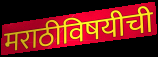
मराठीविषयीची